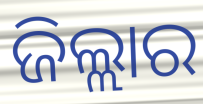
ଜିଲ୍ଲାର